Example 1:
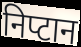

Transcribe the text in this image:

निप्टान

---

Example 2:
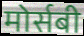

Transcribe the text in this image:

मोर्सबी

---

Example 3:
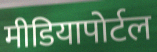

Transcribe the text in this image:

मीडियापोर्टल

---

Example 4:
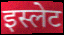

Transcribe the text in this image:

इस्लेट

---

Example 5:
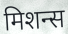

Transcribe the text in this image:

मिशन्स